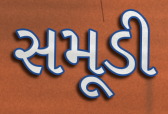
સમૂડી